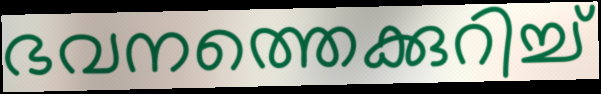
ഭവനത്തെക്കുറിച്ച്